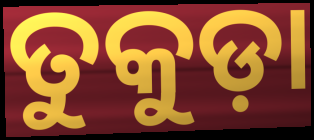
ତୁକୁଡ଼ା